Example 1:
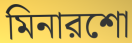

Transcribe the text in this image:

মিনারশো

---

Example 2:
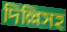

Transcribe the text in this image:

দিল্লিসহ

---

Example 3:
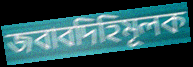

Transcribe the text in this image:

জবাবদিহিমূলক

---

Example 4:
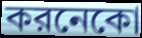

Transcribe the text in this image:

করনেকো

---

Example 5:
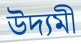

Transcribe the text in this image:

উদ্যমী